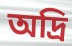
অদ্রি